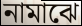
নামাঝে